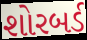
શોરબર્ડ